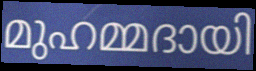
മുഹമ്മദായി